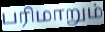
பரிமாறும்